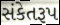
સંકેતરૂપ